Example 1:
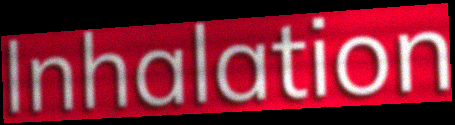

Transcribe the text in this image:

Inhalation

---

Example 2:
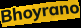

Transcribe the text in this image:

Bhoyrano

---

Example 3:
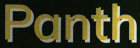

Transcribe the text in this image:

Panth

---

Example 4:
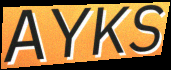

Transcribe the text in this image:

AYKS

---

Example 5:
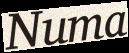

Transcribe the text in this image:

Numa